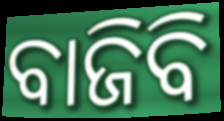
ବାଜିବି